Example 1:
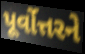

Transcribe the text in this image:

પૂર્વોત્તરને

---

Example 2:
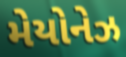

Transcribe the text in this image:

મેયોનેઝ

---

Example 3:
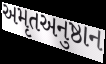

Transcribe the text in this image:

અમૃતઅનુષ્ઠાન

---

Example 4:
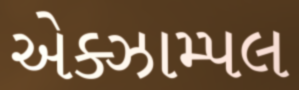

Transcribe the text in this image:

એક્ઝામ્પલ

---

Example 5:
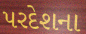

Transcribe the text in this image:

પરદેશના